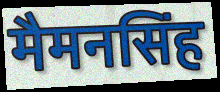
मैमनसिंह